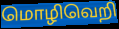
மொழிவெறி